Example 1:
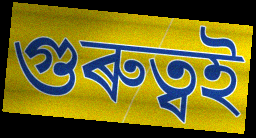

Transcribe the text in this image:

গুৰুত্বই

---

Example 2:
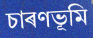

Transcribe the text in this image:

চাৰণভূমি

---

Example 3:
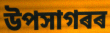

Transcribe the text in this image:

উপসাগৰৰ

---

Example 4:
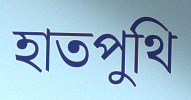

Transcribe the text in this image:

হাতপুথি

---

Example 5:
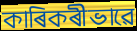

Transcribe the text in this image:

কাৰিকৰীভাৱে